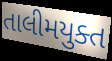
તાલીમયુક્ત